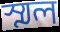
স্মল